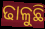
ଢାଳୁଛି